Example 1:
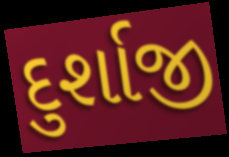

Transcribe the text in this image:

દુર્શાજી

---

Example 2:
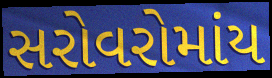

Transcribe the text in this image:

સરોવરોમાંય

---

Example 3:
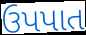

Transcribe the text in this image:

ઉપપાત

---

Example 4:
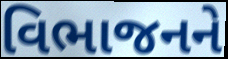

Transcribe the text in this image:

વિભાજનને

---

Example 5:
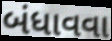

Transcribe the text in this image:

બંધાવવા